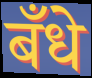
बँधे